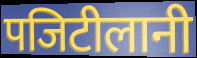
पजिटीलानी